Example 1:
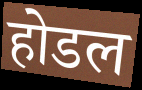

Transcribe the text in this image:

होडल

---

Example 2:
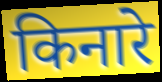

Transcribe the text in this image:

किनारे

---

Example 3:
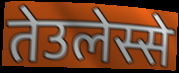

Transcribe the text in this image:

तेउलेस्से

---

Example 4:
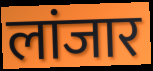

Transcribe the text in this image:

लांजार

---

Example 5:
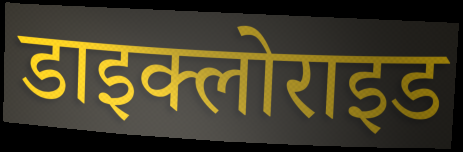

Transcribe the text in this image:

डाइक्लोराइड